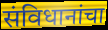
संविधानांचा